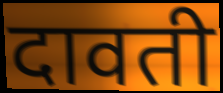
दावती